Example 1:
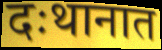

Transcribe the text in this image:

दःथानात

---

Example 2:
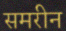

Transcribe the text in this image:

समरीन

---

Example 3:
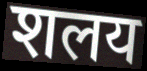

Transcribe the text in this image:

शलय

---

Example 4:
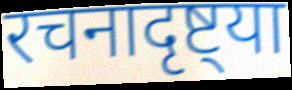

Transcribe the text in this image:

रचनादृष्ट्या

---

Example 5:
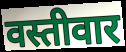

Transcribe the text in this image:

वस्तीवार